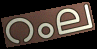
റംല